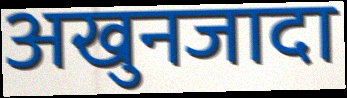
अखुनजादा